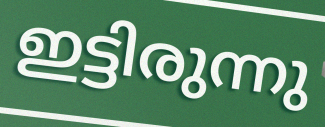
ഇട്ടിരുന്നു